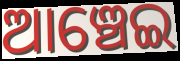
ଆଞ୍ଚେଇ